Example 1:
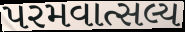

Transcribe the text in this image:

પરમવાત્સલ્ય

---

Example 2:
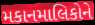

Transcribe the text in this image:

મકાનમાલિકોને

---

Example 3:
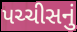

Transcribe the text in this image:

પચ્ચીસનું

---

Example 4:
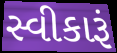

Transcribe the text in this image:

સ્વીકારૂં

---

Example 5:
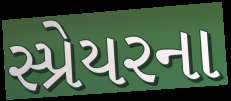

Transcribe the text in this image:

સ્પ્રેયરના